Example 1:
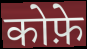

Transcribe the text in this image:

कोफ़े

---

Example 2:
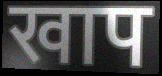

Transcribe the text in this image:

खाप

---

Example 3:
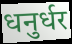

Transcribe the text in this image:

धनुर्धर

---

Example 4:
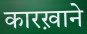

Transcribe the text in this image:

कारख़ाने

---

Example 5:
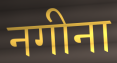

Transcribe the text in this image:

नगीना